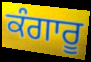
ਕੰਗਾਰੂ